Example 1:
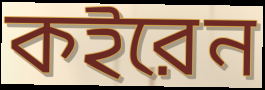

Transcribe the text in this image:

কইরেন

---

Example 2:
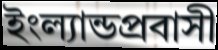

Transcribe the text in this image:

ইংল্যান্ডপ্রবাসী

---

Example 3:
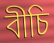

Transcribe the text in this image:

বীচি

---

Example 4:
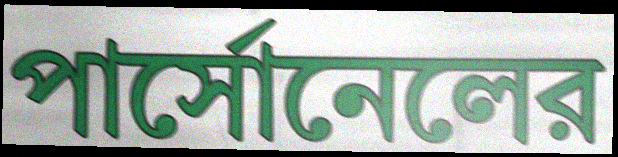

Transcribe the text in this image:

পার্সোনেলের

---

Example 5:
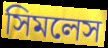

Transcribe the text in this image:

সিমলেস